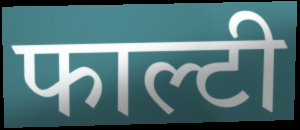
फाल्टी